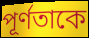
পূর্ণতাকে